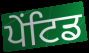
ਪੇਂਟਿਡ